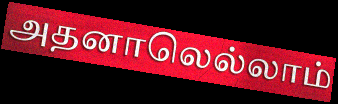
அதனாலெல்லாம்